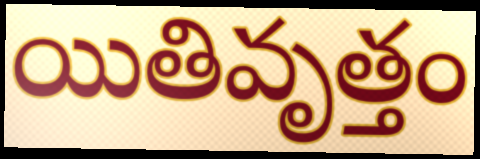
యితివృత్తం